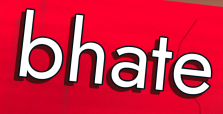
bhate